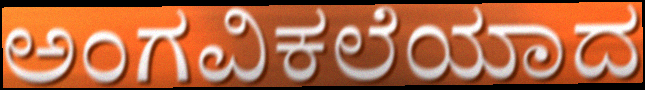
ಅಂಗವಿಕಲೆಯಾದ